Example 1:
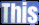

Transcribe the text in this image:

This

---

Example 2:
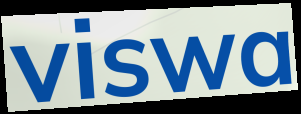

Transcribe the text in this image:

viswa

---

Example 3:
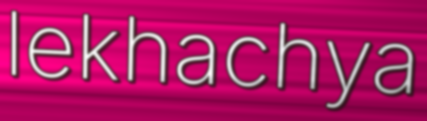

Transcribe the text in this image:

lekhachya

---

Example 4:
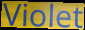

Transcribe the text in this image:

Violet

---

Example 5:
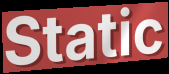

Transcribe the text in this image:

Static